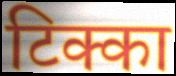
टिक्का